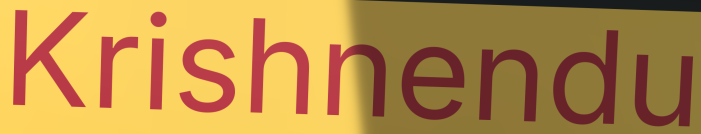
Krishnendu